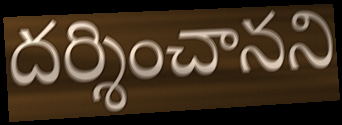
దర్శించానని